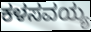
ಕಳಸವಯ್ಯ